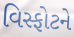
વિસ્ફોટને